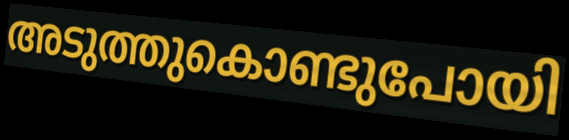
അടുത്തുകൊണ്ടുപോയി